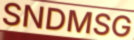
SNDMSG